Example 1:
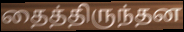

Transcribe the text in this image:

தைத்திருந்தன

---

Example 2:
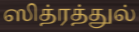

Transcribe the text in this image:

ஸித்ரத்துல்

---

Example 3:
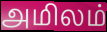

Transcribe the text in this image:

அமிலம்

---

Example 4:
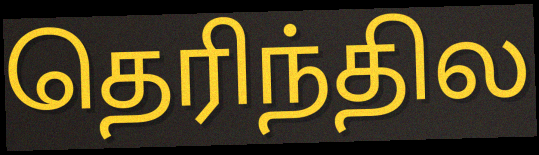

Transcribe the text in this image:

தெரிந்தில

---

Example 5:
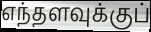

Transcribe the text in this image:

எந்தளவுக்குப்